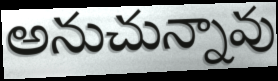
అనుచున్నావు